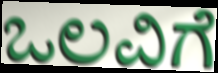
ಒಲವಿಗೆ